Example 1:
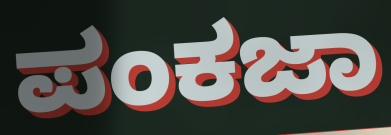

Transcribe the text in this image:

ಪಂಕಜಾ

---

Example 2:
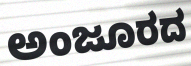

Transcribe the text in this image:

ಅಂಜೂರದ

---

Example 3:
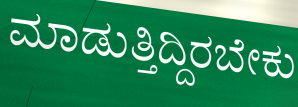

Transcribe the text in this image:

ಮಾಡುತ್ತಿದ್ದಿರಬೇಕು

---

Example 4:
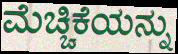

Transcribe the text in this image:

ಮೆಚ್ಚಿಕೆಯನ್ನು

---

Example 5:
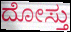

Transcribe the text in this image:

ದೋಸ್ತು